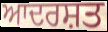
ਆਦਰਸ਼ਤ